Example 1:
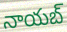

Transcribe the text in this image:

నాయబ్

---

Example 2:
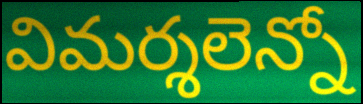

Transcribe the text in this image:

విమర్శలెన్నో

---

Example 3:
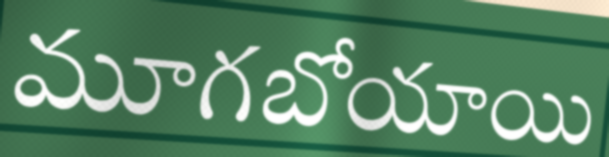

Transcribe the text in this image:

మూగబోయాయి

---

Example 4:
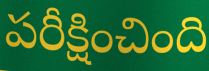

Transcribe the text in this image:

పరీక్షించింది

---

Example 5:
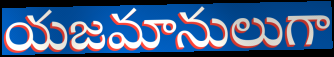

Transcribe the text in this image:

యజమానులుగా